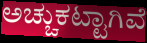
ಅಚ್ಚುಕಟ್ಟಾಗಿವೆ